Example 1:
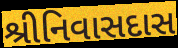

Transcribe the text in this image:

શ્રીનિવાસદાસ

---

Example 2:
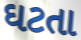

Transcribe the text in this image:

ઘટતા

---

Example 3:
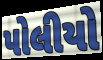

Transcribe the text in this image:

પોલીયો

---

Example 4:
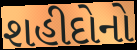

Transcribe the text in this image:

શહીદોનો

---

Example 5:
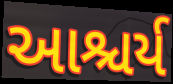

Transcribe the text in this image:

આશ્ચર્ય